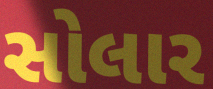
સોલાર